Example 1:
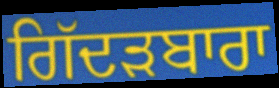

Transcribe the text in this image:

ਗਿੱਦੜਬਾਰਾ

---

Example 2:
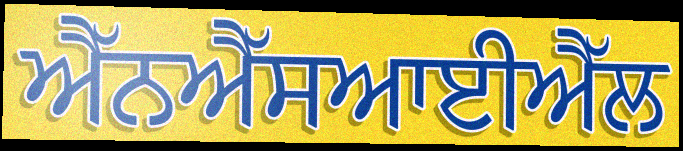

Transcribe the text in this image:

ਐੱਨਐੱਸਆਈਐੱਲ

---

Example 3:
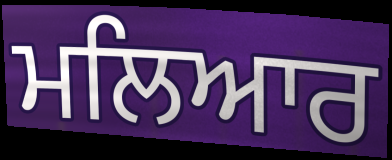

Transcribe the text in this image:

ਮਲਿਆਰ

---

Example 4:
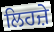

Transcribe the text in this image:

ਲਿਹਜ਼ੇ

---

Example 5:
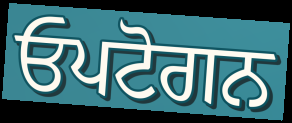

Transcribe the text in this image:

ਓਪਟੋਗਨ